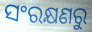
ସଂରକ୍ଷଣରୁ